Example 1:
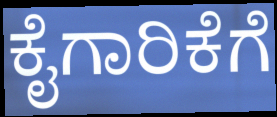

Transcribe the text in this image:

ಕೈಗಾರಿಕೆಗೆ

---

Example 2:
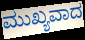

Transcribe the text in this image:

ಮುಖ್ಯವಾದ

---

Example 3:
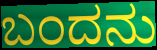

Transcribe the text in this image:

ಬಂದನು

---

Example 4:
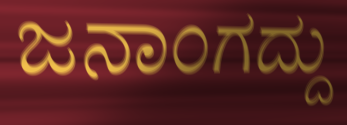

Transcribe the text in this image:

ಜನಾಂಗದ್ದು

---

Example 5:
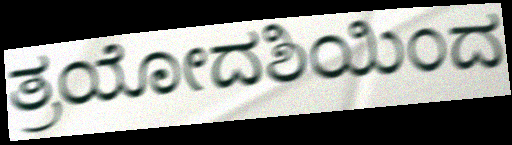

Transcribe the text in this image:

ತ್ರಯೋದಶಿಯಿಂದ